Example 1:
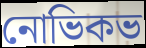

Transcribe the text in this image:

নোভিকভ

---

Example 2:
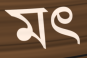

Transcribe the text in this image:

মৎ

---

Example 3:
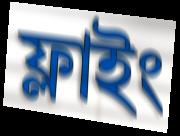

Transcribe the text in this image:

ফ্লাইং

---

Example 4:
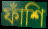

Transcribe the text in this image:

ফাঁশি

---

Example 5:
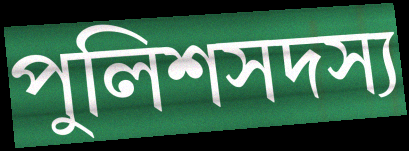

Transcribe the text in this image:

পুলিশসদস্য